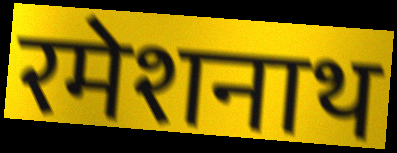
रमेशनाथ